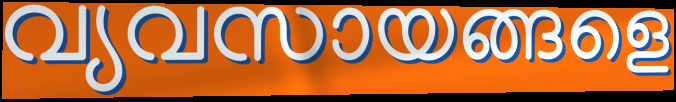
വ്യവസായങ്ങളെ